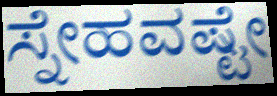
ಸ್ನೇಹವಷ್ಟೇ